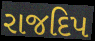
રાજદિપ